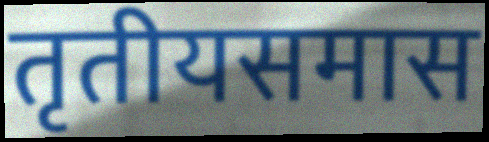
तृतीयसमास